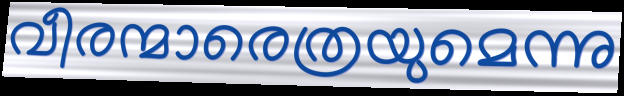
വീരന്മാരെത്രയുമെന്നു